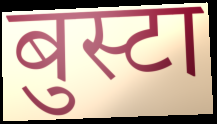
बुस्टा